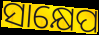
ସାକ୍ଷେପ